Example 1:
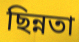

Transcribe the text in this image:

ছিন্নতা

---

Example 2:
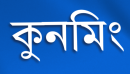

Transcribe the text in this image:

কুনমিং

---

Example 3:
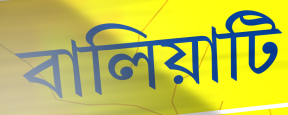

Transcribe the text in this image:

বালিয়াটি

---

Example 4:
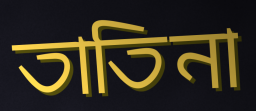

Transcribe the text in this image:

তাতিনা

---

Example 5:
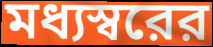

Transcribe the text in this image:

মধ্যস্বরের